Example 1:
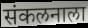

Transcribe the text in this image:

संकलनाला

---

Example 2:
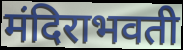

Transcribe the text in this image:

मंदिराभवती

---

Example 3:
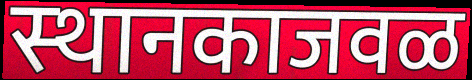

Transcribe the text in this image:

स्थानकाजवळ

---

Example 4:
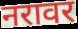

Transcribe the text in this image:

नरावर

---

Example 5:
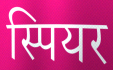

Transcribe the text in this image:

स्पियर